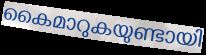
കൈമാറുകയുണ്ടായി